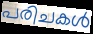
പരിചകൾ